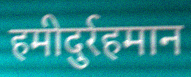
हमीदुर्रहमान